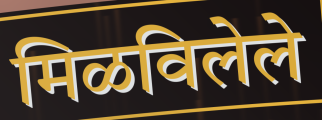
मिळविलेले